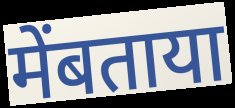
मेंबताया